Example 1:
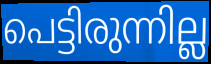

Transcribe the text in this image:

പെട്ടിരുന്നില്ല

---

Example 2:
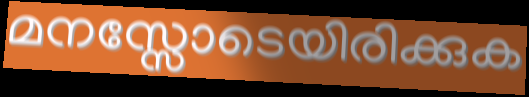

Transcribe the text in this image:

മനസ്സോടെയിരിക്കുക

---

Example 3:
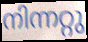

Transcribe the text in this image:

നിന്നറ്റു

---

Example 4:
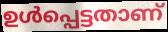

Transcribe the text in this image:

ഉൾപ്പെട്ടതാണ്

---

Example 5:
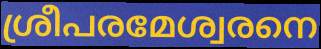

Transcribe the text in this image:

ശ്രീപരമേശ്വരനെ